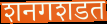
शनगशडत